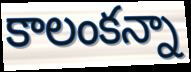
కాలంకన్నా